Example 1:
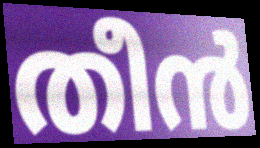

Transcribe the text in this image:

തീൻ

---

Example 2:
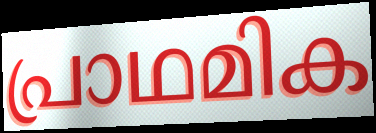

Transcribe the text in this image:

പ്രാഥമിക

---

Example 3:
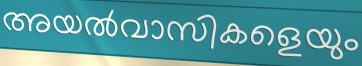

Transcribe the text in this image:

അയൽവാസികളെയും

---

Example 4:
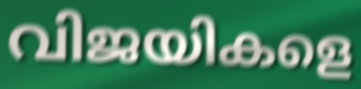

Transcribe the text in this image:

വിജയികളെ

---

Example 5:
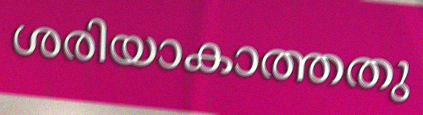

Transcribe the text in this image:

ശരിയാകാത്തതു